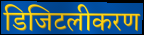
डिजिटलीकरण